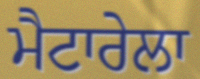
ਮੈਟਾਰੇਲਾ